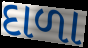
દાળા